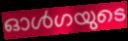
ഓൾഗയുടെ